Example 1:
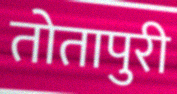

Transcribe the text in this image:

तोतापुरी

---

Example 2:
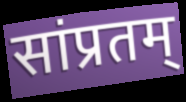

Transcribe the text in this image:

सांप्रतम्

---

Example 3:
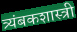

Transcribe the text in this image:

त्र्यंबकशास्त्री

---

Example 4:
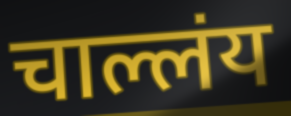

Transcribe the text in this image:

चाल्लंय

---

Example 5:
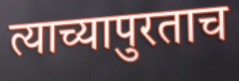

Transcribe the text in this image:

त्याच्यापुरताच